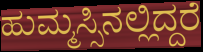
ಹುಮ್ಮಸ್ಸಿನಲ್ಲಿದ್ದರೆ